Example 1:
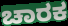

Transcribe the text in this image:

ಚಾರಕ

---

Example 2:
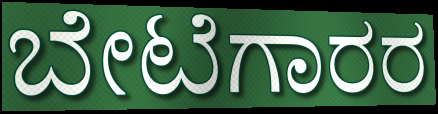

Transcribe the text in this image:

ಬೇಟೆಗಾರರ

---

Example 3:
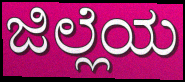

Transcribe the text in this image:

ಜಿಲ್ಲೆಯ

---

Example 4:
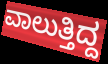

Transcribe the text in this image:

ವಾಲುತ್ತಿದ್ದ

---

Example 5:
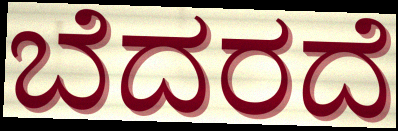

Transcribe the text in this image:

ಬೆದರದೆ